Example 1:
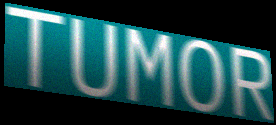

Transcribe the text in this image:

TUMOR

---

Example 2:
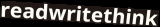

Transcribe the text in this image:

readwritethink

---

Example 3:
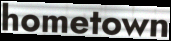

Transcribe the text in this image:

hometown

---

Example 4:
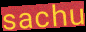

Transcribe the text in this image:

sachu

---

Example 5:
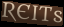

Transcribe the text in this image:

REITs